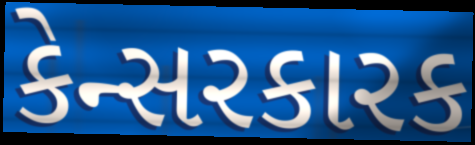
કેન્સરકારક